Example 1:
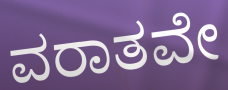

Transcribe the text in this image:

ವರಾತವೇ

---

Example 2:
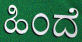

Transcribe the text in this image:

ಹಿಂದೆ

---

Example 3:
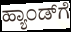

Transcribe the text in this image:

ಹ್ಯಾಂಡ್‌ಗೆ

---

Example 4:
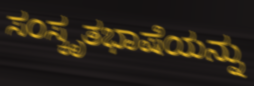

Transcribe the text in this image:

ಸಂಸ್ಕೃತಭಾಷೆಯನ್ನು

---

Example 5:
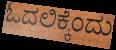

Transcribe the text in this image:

ಓದಲಿಕ್ಕೆಂದು